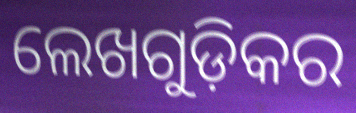
ଲେଖଗୁଡ଼ିକର